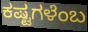
ಕಷ್ಟಗಳೆಂಬ